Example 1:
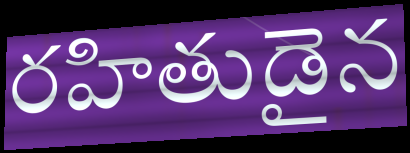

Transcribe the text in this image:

రహితుడైన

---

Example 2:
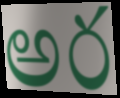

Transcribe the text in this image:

అర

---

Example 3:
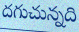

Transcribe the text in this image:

దగుచున్నది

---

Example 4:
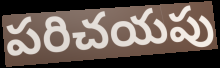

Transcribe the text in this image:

పరిచయపు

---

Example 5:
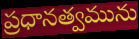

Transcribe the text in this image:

ప్రధానత్వమును